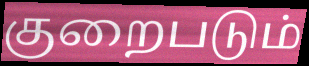
குறைபடும்